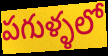
పగుళ్ళలో